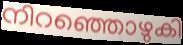
നിറഞ്ഞൊഴുകി